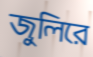
জুলিরে